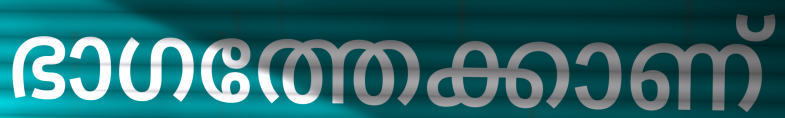
ഭാഗത്തേക്കാണ്